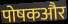
पोषकऔर